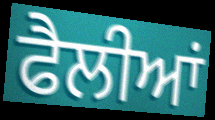
ਫੈਲੀਆਂ